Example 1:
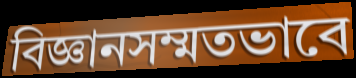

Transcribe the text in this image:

বিজ্ঞানসম্মতভাবে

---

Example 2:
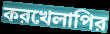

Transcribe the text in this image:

করখেলাপির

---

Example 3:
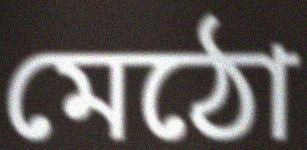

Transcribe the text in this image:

মেঠো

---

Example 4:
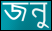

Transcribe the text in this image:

জনু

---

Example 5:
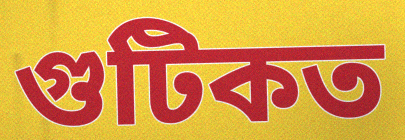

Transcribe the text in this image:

গুটিকত